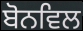
ਬੋਨਵਿਲ